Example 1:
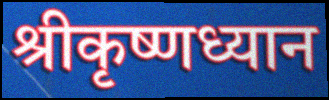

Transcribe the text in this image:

श्रीकृष्णध्यान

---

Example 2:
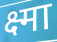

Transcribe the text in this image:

क्ष्मा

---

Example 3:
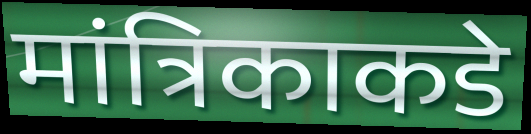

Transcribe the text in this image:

मांत्रिकाकडे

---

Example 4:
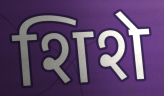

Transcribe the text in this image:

शिशे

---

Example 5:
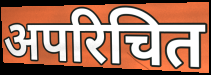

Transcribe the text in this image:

अपरिचित